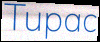
Tupac